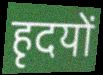
हृदयों